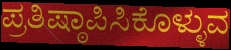
ಪ್ರತಿಷ್ಠಾಪಿಸಿಕೊಳ್ಳುವ